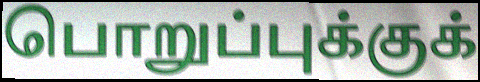
பொறுப்புக்குக்